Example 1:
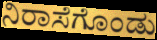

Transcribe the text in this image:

ನಿರಾಸೆಗೊಂಡು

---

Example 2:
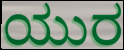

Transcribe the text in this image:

ಯುರ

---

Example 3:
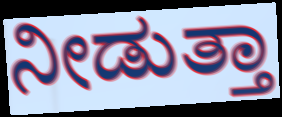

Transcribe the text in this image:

ನೀಡುತ್ತಾ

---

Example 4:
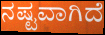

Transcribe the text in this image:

ನಷ್ಟವಾಗಿದೆ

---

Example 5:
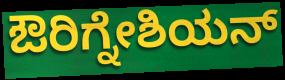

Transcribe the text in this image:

ಔರಿಗ್ನೇಶಿಯನ್